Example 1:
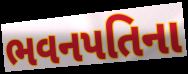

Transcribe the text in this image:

ભવનપતિના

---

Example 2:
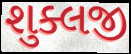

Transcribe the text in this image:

શુક્લજી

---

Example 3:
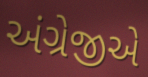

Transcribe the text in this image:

અંગ્રેજીએ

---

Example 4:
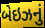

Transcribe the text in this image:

બેઇઝનું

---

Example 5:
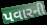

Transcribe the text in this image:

પવારની